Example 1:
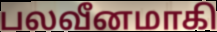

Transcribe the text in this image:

பலவீனமாகி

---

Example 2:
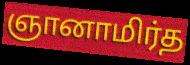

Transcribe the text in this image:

ஞானாமிர்த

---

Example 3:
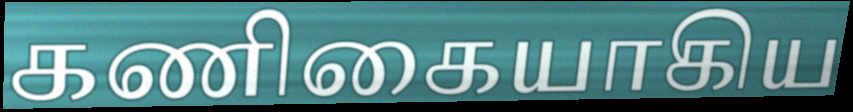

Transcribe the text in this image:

கணிகையாகிய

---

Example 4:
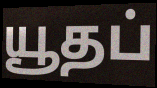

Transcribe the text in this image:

யூதப்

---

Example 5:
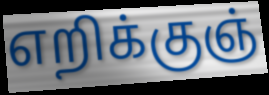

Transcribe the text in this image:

எறிக்குஞ்